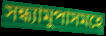
সন্ধ্যামুপাসমহে